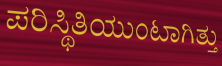
ಪರಿಸ್ಥಿತಿಯುಂಟಾಗಿತ್ತು